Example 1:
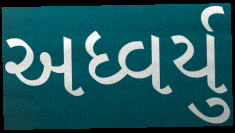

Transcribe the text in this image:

અધ્વર્યુ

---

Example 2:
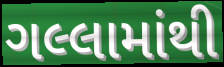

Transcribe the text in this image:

ગલ્લામાંથી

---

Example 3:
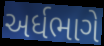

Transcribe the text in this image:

અર્ધભાગે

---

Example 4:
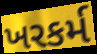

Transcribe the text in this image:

ખરકર્મ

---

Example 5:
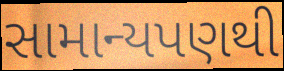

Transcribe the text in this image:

સામાન્યપણથી